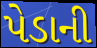
પેડાની